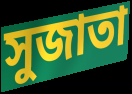
সুজাতা